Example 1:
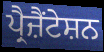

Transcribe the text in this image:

ਪ੍ਰੈਜ਼ੈਂਟੇਸ਼ਨ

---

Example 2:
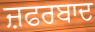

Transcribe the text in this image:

ਜ਼ਫਰਬਾਦ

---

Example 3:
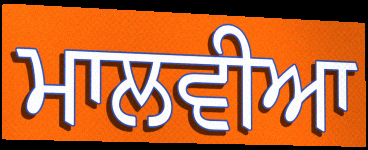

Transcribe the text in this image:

ਮਾਲਵੀਆ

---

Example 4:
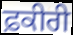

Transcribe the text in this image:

ਫ਼ਕੀਰੀ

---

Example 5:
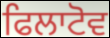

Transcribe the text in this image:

ਫਿਲਾਟੋਵ